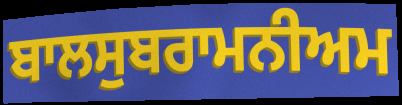
ਬਾਲਸੁਬਰਾਮਨੀਅਮ